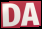
DA